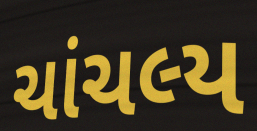
ચાંચલ્ય